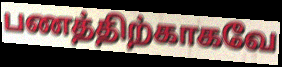
பணத்திற்காகவே